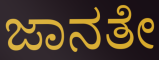
ಜಾನತೇ